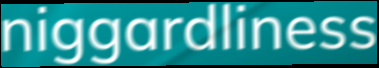
niggardliness